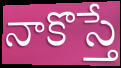
నాకొస్తే